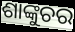
ଶାଙ୍କୁଚର